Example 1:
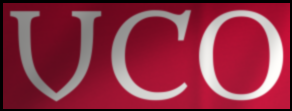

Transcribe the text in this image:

UCO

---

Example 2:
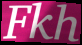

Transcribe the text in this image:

Fkh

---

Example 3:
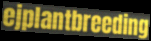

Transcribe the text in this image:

ejplantbreeding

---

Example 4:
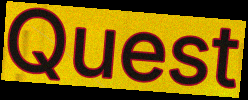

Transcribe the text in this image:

Quest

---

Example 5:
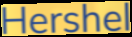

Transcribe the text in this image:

Hershel